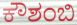
ಕೌಶಂಬಿ